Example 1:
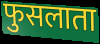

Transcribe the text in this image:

फुसलाता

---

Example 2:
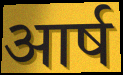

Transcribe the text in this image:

आर्ष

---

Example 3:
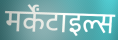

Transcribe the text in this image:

मर्केंटाइल्स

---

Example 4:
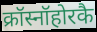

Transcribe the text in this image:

क्रॉस्नॉहोरकै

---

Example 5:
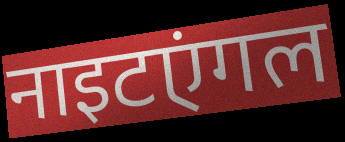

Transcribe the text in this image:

नाइटएंगल